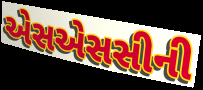
એસએસસીની